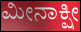
ಮೀನಾಕ್ಷೀ